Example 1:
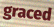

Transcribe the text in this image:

graced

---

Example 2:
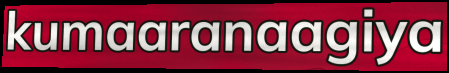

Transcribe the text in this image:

kumaaranaagiya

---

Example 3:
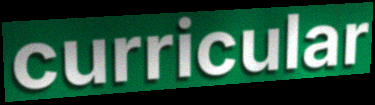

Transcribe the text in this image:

curricular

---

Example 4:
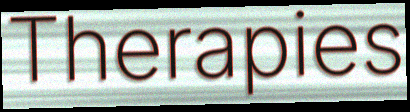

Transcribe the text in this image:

Therapies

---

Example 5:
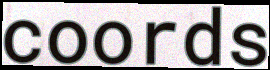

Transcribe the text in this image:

coords